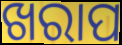
ଖରାପ